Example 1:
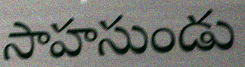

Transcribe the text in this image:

సాహసుండు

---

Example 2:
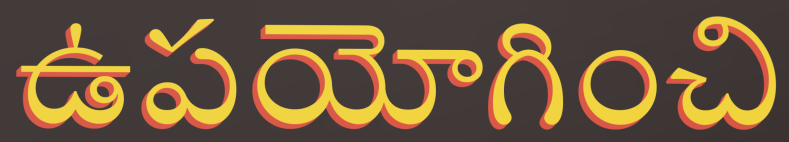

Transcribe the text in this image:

ఉపయోగించి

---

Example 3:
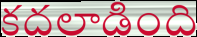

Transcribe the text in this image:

కదలాడింది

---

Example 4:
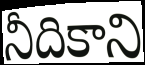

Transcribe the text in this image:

నీదికాని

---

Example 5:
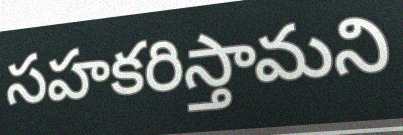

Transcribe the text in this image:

సహకరిస్తామని